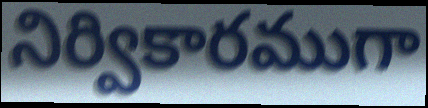
నిర్వికారముగా